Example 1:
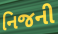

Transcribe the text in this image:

નિજની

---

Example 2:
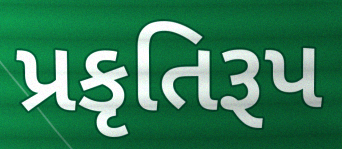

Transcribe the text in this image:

પ્રકૃતિરૂપ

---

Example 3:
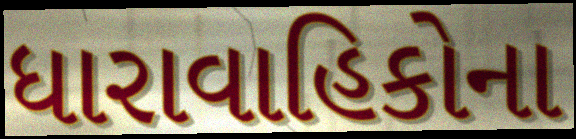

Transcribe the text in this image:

ધારાવાહિકોના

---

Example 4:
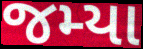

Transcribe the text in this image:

જમ્યા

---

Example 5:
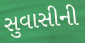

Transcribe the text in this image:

સુવાસીની